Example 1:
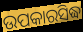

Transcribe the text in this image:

ଉପକାରସିଦ୍ଧ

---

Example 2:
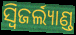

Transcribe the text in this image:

ସ୍ୱିଜର୍ଲ୍ୟାଣ୍ଡ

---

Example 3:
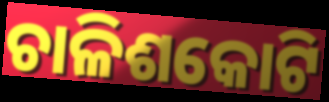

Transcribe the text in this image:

ଚାଳିଶକୋଟି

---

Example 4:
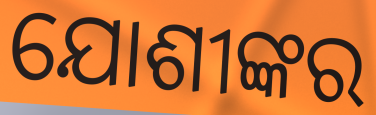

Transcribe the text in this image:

ଯୋଶୀଙ୍କର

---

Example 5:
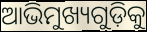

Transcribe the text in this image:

ଆଭିମୁଖ୍ୟଗୁଡ଼ିକୁ